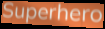
Superhero